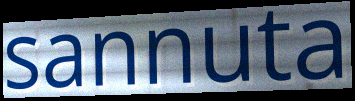
sannuta